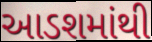
આડશમાંથી